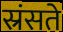
स्रंसते